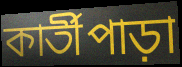
কার্তীপাড়া